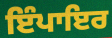
ਇੰਪਾਇਰ